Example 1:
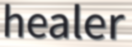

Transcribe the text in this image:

healer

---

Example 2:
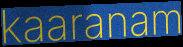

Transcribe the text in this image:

kaaranam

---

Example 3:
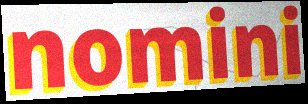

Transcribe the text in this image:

nomini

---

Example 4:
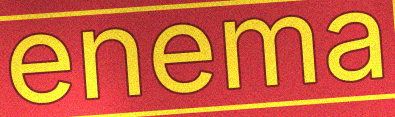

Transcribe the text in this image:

enema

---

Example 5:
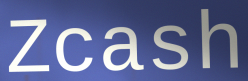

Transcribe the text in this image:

Zcash